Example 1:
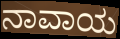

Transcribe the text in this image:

ನಾವಾಯ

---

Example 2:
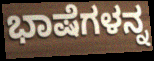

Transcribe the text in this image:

ಭಾಷೆಗಳನ್ನ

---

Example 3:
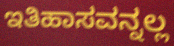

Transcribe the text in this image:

ಇತಿಹಾಸವನ್ನಲ್ಲ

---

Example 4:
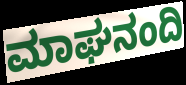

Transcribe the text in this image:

ಮಾಘನಂದಿ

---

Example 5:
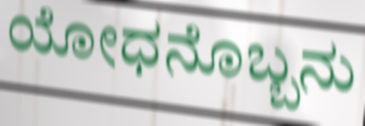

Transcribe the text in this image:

ಯೋಧನೊಬ್ಬನು